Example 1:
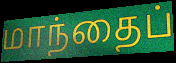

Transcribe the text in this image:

மாந்தைப்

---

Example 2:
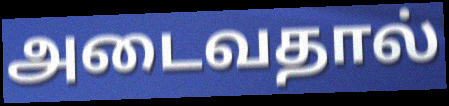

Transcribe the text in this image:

அடைவதால்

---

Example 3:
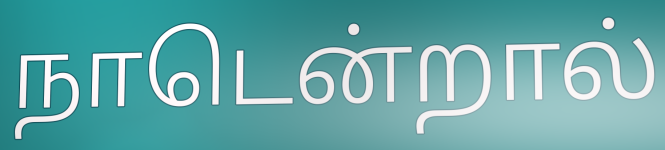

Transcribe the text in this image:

நாடென்றால்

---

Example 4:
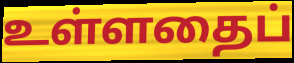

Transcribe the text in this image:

உள்ளதைப்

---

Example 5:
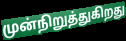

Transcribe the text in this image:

முன்நிறுத்துகிறது